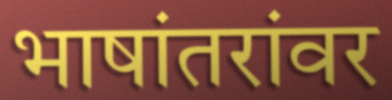
भाषांतरांवर